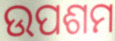
ଉପଶମ